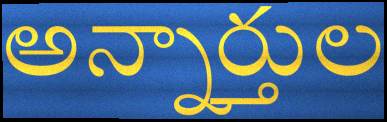
అన్నార్తుల